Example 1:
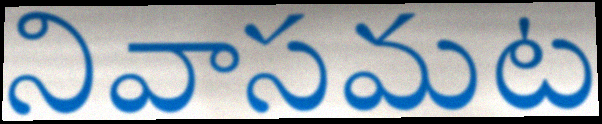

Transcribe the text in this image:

నివాసమట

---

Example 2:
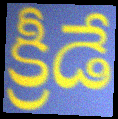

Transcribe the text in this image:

క్రీడే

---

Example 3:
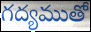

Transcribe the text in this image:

గద్యముతో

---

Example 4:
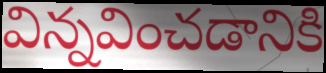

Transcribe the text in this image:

విన్నవించడానికి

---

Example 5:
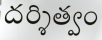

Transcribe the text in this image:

దర్శిత్వం